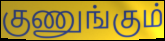
குணுங்கும்